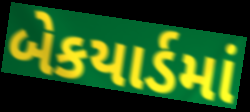
બેકયાર્ડમાં